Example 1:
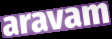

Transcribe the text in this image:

aravam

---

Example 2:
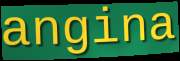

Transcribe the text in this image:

angina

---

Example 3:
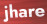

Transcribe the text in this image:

jhare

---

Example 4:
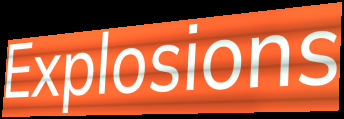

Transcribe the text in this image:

Explosions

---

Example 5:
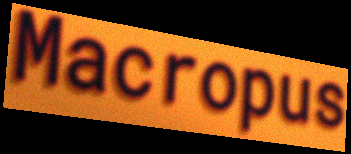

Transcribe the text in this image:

Macropus